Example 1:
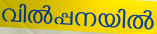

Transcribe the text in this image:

വിൽപ്പനയിൽ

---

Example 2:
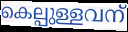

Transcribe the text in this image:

കെല്പുള്ളവന്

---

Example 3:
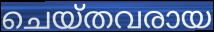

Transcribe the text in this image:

ചെയ്തവരായ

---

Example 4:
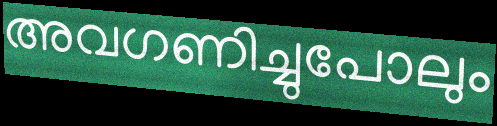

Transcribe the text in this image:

അവഗണിച്ചുപോലും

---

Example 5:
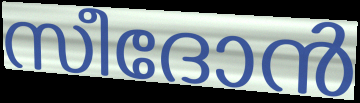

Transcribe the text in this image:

സീദോൻ